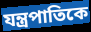
যন্ত্রপাতিকে